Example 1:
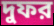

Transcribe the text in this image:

দুফর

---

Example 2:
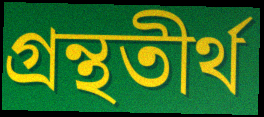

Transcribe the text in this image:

গ্রন্থতীর্থ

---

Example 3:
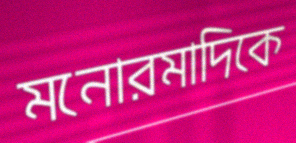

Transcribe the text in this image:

মনোরমাদিকে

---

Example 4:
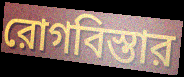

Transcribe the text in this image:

রোগবিস্তার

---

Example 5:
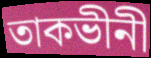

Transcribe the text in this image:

তাকভীনী